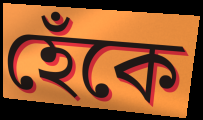
হেঁকে